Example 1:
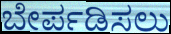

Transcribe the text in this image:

ಬೇರ್ಪಡಿಸಲು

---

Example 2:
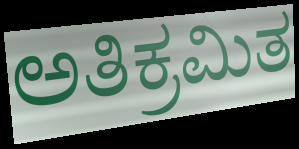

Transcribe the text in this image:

ಅತಿಕ್ರಮಿತ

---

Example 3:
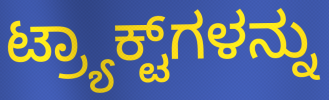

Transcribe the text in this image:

ಟ್ರ್ಯಾಕ್ಟ್‌ಗಳನ್ನು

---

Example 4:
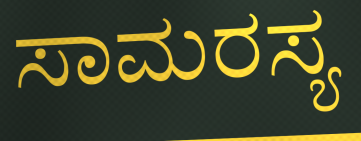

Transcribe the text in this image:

ಸಾಮರಸ್ಯ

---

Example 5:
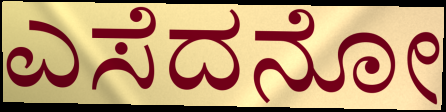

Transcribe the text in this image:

ಎಸೆದನೋ